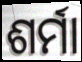
ଶର୍ମା